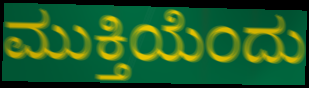
ಮುಕ್ತಿಯೆಂದು